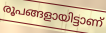
രൂപങ്ങളായിട്ടാണ്